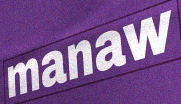
manaw